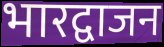
भारद्वाजन